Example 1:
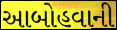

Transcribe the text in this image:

આબોહવાની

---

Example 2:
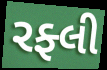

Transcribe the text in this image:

રફ્લી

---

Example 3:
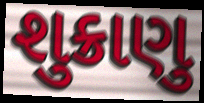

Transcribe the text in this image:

શુક્રાણુ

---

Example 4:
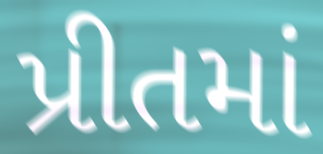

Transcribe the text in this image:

પ્રીતમાં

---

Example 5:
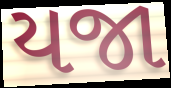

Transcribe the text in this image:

યજા